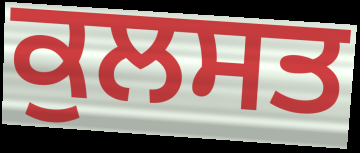
ਕੁਲਸਤ